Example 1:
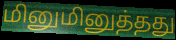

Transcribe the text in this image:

மினுமினுத்தது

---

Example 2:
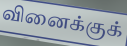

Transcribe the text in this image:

வினைக்குக்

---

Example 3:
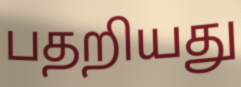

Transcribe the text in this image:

பதறியது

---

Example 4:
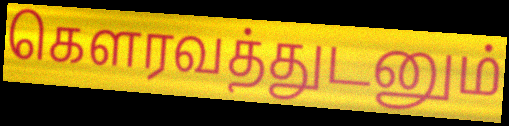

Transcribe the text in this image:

கௌரவத்துடனும்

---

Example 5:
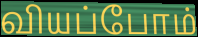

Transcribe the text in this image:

வியப்போம்